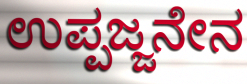
ಉಪ್ಪಜ್ಜನೇನ